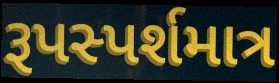
રૂપસ્પર્શમાત્ર